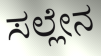
ಸಲ್ಲೇನ